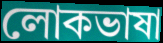
লোকভাষা